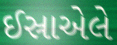
ઈસ્રાએલે